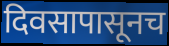
दिवसापासूनच